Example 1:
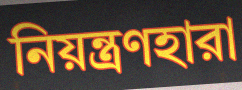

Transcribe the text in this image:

নিয়ন্ত্রণহারা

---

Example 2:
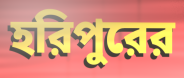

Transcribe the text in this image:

হরিপুরের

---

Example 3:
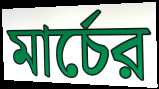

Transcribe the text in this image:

মার্চের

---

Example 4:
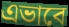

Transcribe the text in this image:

এভাবে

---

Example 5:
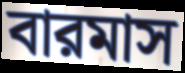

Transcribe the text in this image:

বারমাস